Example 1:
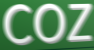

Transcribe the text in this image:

COZ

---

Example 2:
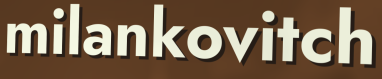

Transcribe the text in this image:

milankovitch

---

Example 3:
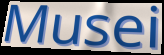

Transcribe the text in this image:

Musei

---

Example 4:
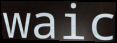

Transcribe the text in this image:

waic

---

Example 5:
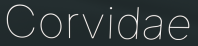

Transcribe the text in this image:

Corvidae